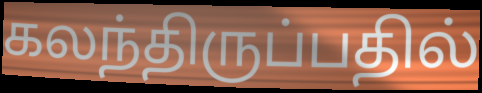
கலந்திருப்பதில்